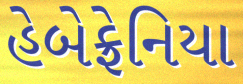
હેબેફ્રેનિયા